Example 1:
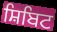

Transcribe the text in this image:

ਸ਼ਿਬਿਟ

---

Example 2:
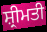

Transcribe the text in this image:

ਸ਼੍ਰੀਮਤੀ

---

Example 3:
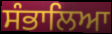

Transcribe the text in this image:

ਸੰਭਾਲਿਆ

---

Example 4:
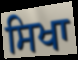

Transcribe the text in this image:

ਸਿਖਾ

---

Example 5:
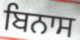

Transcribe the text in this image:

ਬਿਨਾਸ